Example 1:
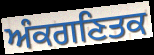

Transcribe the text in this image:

ਅੰਕਗਣਿਤਕ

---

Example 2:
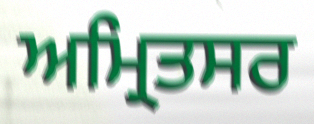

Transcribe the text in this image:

ਅਮ੍ਰਿਤਸਰ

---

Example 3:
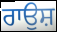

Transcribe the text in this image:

ਰਾਉਸ਼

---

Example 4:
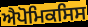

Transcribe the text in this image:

ਐਪੋਮਿਕਸਿਸ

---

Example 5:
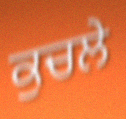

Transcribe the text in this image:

ਕੁਚਲੇ